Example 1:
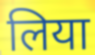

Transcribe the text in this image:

लिया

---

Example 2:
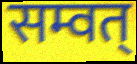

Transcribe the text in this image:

सम्वत्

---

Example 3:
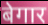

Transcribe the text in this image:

बेगार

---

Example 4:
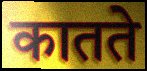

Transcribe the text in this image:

कातते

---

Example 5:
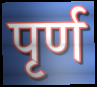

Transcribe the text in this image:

पृर्ण